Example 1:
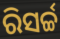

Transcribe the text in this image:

ରିସର୍ଚ୍ଚ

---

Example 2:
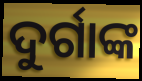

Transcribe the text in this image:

ଦୁର୍ଗାଙ୍କ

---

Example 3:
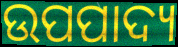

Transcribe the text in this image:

ଉପପାଦ୍ୟ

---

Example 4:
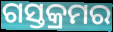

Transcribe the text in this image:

ଗସ୍ତକ୍ରମର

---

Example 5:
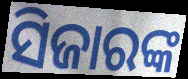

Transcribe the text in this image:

ସିଜାରଙ୍କ